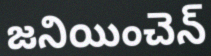
జనియించెన్